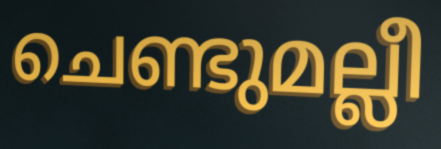
ചെണ്ടുമല്ലീ